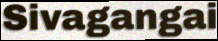
Sivagangai